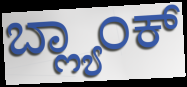
ಬ್ಲ್ಯಾಂಕ್